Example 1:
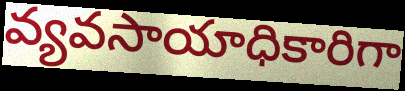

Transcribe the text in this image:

వ్యవసాయాధికారిగా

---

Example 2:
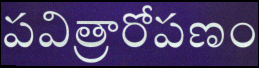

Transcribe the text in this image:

పవిత్రారోపణం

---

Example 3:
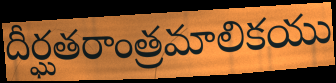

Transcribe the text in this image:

దీర్ఘతరాంత్రమాలికయు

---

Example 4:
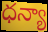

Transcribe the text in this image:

ధన్యా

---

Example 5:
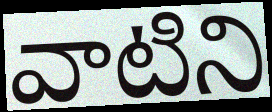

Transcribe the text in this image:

వాటిని